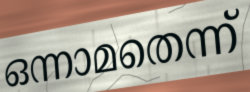
ഒന്നാമതെന്ന്